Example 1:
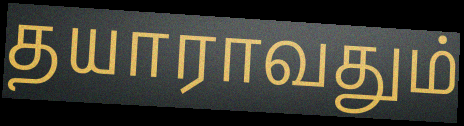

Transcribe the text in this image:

தயாராவதும்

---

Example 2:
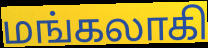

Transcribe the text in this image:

மங்கலாகி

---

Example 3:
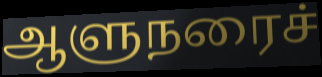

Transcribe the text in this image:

ஆளுநரைச்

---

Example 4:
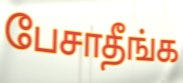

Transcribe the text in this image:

பேசாதீங்க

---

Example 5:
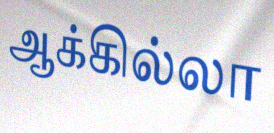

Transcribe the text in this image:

ஆக்கில்லா